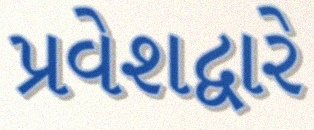
પ્રવેશદ્વારે